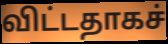
விட்டதாகச்